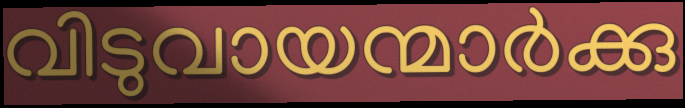
വിടുവായന്മാർക്കു